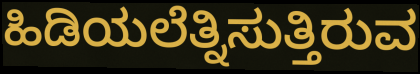
ಹಿಡಿಯಲೆತ್ನಿಸುತ್ತಿರುವ